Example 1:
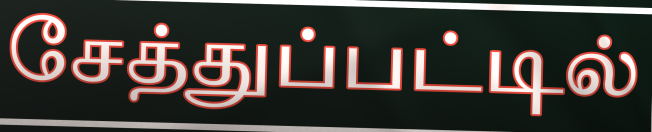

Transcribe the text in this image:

சேத்துப்பட்டில்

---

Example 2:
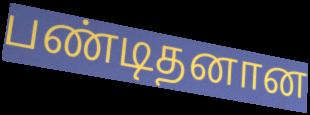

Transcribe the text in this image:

பண்டிதனான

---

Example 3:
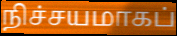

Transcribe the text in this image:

நிச்சயமாகப்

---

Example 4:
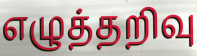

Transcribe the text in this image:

எழுத்தறிவு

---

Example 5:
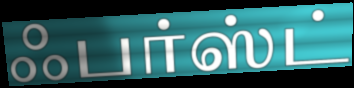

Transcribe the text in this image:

ஃபர்ஸ்ட்